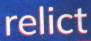
relict